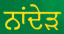
ਨਾਂਦੇੜ